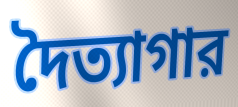
দৈত্যাগার